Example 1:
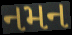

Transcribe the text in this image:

નમન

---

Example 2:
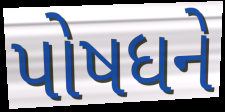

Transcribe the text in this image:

પોષધને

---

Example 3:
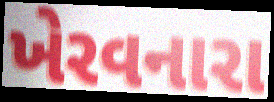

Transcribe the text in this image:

ખેરવનારા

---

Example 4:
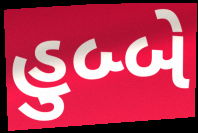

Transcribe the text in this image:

હુબ્બે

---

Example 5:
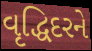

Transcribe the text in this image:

વૃદ્ધિદરને